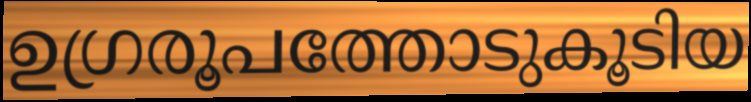
ഉഗ്രരൂപത്തോടുകൂടിയ